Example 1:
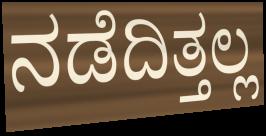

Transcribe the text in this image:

ನಡೆದಿತ್ತಲ್ಲ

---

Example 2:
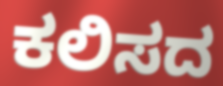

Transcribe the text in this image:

ಕಲಿಸದ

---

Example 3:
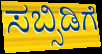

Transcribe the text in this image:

ಸಬ್ಸಿಡಿಗೆ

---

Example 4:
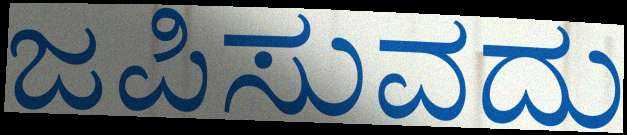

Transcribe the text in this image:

ಜಪಿಸುವದು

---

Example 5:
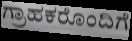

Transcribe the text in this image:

ಗ್ರಾಹಕರೊಂದಿಗೆ